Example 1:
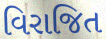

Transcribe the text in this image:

વિરાજિત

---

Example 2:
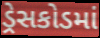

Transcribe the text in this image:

ડ્રેસકોડમાં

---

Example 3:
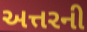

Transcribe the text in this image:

અત્તરની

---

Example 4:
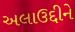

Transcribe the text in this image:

અલાઉદ્દીને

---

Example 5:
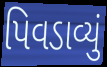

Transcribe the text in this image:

પિવડાવ્યું